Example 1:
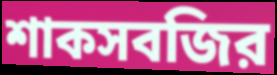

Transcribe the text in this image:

শাকসবজির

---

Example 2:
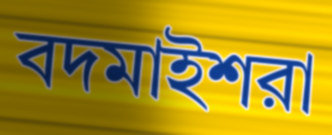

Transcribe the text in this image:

বদমাইশরা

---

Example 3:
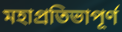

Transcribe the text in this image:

মহাপ্রতিভাপূর্ণ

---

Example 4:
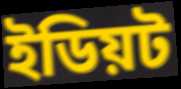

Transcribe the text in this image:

ইডিয়ট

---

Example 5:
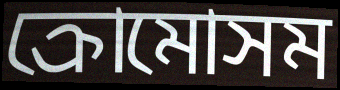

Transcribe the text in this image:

ক্রোমোসম